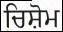
ਚਿਸ਼ੋਮ